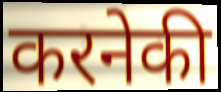
करनेकी